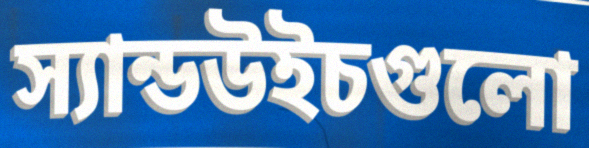
স্যান্ডউইচগুলো